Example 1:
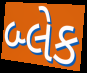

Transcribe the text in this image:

બ્લેક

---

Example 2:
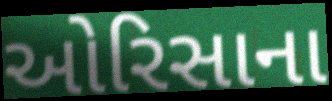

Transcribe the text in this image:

ઓરિસાના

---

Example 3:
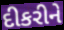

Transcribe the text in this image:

દીકરીને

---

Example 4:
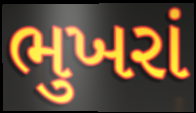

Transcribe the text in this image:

ભુખરાં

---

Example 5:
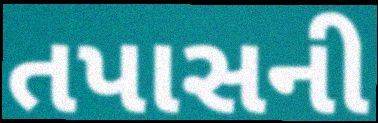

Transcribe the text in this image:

તપાસની